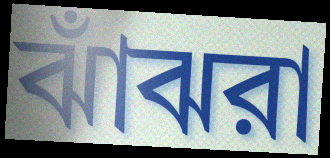
ঝাঁঝরা